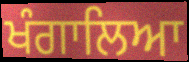
ਖੰਗਾਲਿਆ